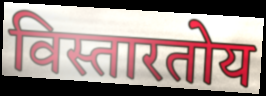
विस्तारतोय